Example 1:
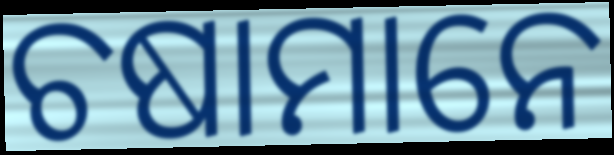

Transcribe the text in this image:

ଚଷାମାନେ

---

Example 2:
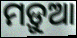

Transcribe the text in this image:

ମଡ଼ୁଆ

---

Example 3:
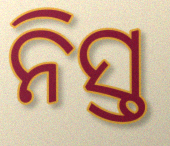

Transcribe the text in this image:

ନିସ୍ତ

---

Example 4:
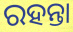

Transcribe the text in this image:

ରହନ୍ତା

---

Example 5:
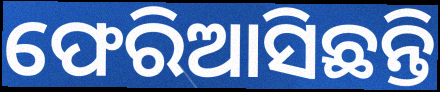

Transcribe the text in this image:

ଫେରିଆସିଛନ୍ତି